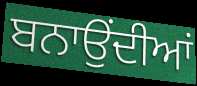
ਬਨਾਉਂਦੀਆਂ